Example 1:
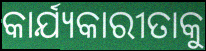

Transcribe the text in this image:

କାର୍ଯ୍ୟକାରୀତାକୁ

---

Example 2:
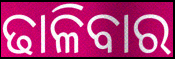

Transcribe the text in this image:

ଢାଳିବାର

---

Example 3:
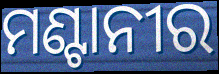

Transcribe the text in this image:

ମଣ୍ଟାନୀର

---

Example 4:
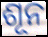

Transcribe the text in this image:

ଶୂନ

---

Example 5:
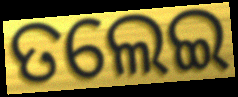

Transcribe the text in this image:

ତଲେଇ